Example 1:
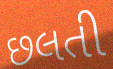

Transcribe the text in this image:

છલતી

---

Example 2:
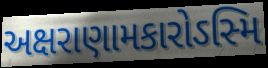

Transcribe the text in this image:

અક્ષરાણામકારોઽસ્મિ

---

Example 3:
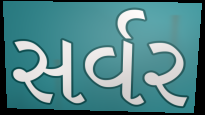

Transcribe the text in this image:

સર્વર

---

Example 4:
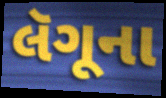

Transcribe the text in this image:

લૅગૂના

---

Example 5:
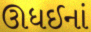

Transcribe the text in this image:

ઊધઈનાં